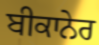
ਬੀਕਾਨੇਰ